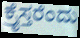
ಕ್ರೈಸ್ತರೆಂದು